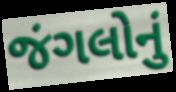
જંગલોનું